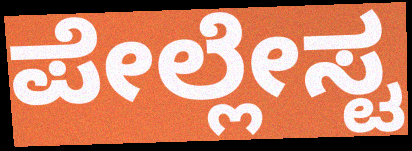
ಪೇಲ್ಲೇಸ್ಟ